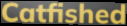
Catfished